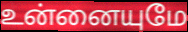
உன்னையுமே